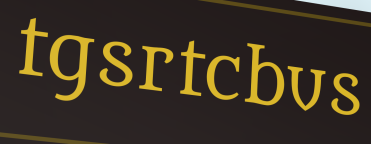
tgsrtcbus